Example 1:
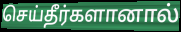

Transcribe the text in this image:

செய்தீர்களானால்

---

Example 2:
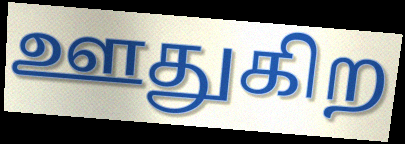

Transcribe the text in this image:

ஊதுகிற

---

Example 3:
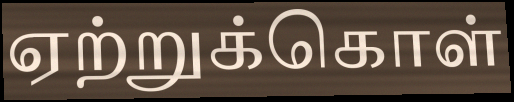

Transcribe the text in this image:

ஏற்றுக்கொள்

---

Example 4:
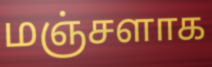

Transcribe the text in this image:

மஞ்சளாக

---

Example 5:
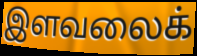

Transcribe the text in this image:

இளவலைக்